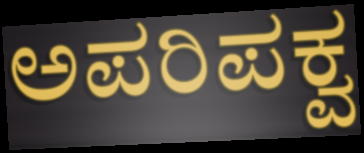
ಅಪರಿಪಕ್ವ